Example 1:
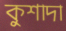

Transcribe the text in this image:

কুশাদা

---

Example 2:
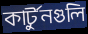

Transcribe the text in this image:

কার্টুনগুলি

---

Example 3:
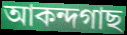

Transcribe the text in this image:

আকন্দগাছ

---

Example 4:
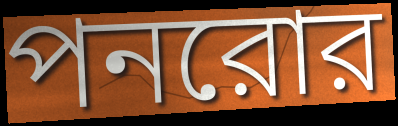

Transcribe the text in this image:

পনরোর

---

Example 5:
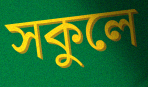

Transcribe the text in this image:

সকুলে